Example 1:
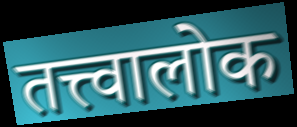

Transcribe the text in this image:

तत्त्वालोक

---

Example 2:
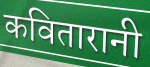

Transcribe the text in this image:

कवितारानी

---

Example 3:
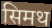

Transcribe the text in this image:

सिमथ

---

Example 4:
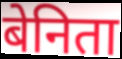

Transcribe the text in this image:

बेनिता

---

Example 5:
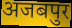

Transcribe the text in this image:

अजबपुर